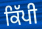
ਕਿੱਪੀ